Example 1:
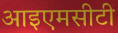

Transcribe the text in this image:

आइएमसीटी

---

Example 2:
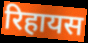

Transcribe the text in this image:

रिहायस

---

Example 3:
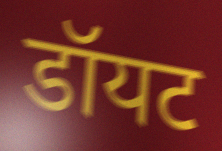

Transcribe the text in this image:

डॉयट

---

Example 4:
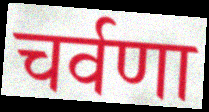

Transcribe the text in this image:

चर्वणा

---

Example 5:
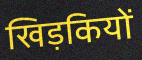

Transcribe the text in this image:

खिड़कियों